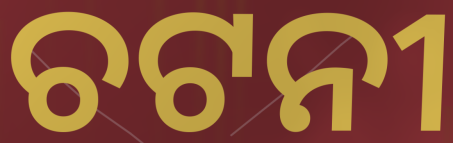
ଚଟନୀ